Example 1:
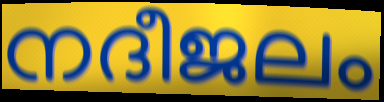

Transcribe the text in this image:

നദീജലം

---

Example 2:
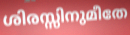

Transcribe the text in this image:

ശിരസ്സിനുമീതേ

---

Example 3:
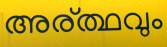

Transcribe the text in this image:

അര്ത്ഥവും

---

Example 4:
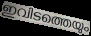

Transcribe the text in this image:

ഇവിടത്തെയും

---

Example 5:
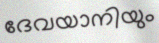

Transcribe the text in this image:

ദേവയാനിയും